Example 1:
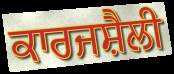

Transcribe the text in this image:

ਕਾਰਜਸ਼ੈਲੀ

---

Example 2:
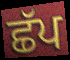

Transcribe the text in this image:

ਛੱਪ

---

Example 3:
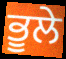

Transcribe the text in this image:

ਭੂਲੇ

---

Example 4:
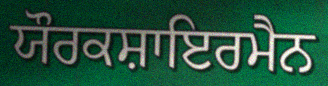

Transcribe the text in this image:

ਯੌਰਕਸ਼ਾਇਰਮੈਨ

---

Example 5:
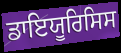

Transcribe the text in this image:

ਡਾਇਯੂਰਿਸਿਸ